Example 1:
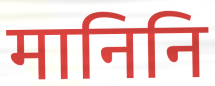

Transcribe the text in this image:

मानिनि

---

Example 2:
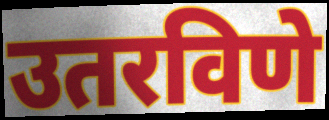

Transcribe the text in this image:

उतरविणे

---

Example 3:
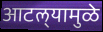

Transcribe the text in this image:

आटल्यामुळे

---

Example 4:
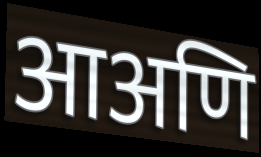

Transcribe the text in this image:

आअणि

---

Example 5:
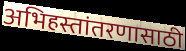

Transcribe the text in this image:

अभिहस्तांतरणासाठी